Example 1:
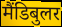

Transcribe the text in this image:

मैंडिबुलर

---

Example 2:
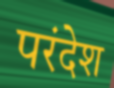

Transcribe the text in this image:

परंदेश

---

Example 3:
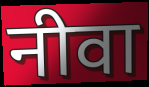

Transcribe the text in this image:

नीवा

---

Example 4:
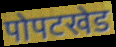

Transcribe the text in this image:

पोपटखेड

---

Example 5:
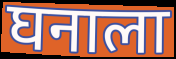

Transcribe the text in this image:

घनाला